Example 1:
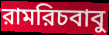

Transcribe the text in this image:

রামরিচবাবু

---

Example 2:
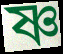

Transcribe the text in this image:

ষ্ণ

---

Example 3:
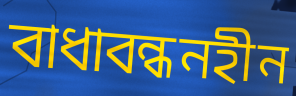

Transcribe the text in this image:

বাধাবন্ধনহীন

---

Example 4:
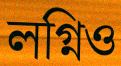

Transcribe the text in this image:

লগ্নিও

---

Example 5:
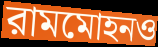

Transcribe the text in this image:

রামমোহনও